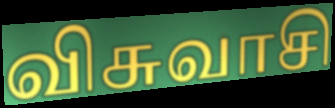
விசுவாசி